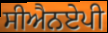
ਸੀਐਨਏਪੀ